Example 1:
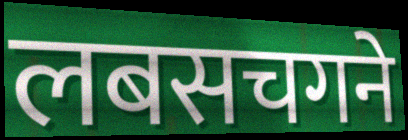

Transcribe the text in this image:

लबसचगने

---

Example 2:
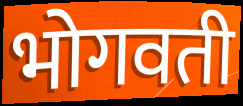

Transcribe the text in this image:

भोगवती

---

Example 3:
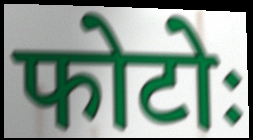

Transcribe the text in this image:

फोटोः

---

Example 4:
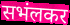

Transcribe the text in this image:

सभंलकर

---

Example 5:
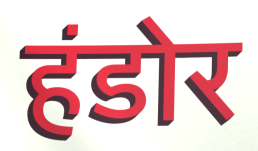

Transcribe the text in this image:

हंडोर